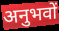
अनुभवों